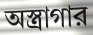
অস্ত্রাগার